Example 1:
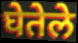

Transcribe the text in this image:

घेतेले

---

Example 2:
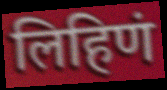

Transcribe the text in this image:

लिहिणं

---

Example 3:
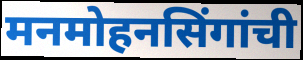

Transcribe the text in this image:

मनमोहनसिंगांची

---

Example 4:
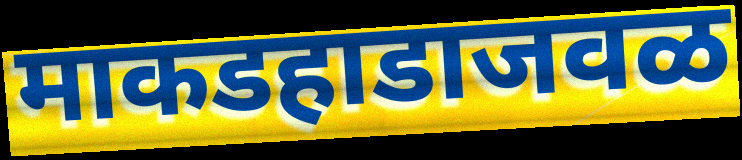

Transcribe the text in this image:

माकडहाडाजवळ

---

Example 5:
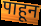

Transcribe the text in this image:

पाहून